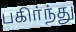
பகிர்ந்து